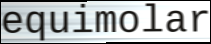
equimolar